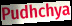
Pudhchya